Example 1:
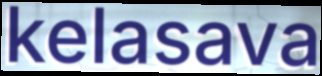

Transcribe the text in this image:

kelasava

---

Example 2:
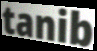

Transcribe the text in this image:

tanib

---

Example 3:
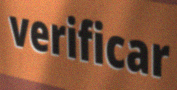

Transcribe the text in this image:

verificar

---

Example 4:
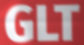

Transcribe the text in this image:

GLT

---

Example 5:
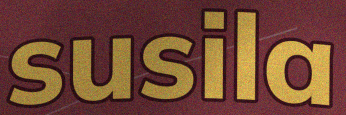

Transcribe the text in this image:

susila